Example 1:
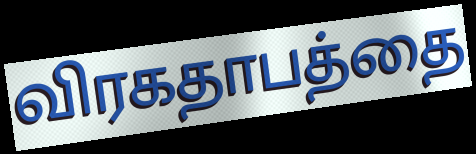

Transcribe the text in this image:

விரகதாபத்தை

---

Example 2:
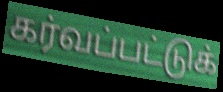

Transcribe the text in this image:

கர்வப்பட்டுக்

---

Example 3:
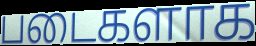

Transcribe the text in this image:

படைகளாக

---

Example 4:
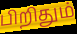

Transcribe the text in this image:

பிறிதும்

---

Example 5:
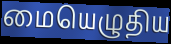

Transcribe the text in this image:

மையெழுதிய